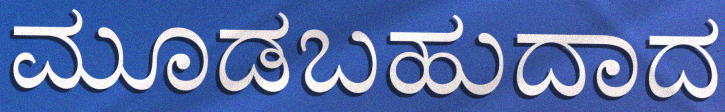
ಮೂಡಬಹುದಾದ